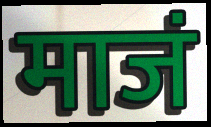
माजं